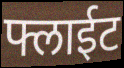
फ्लाईट